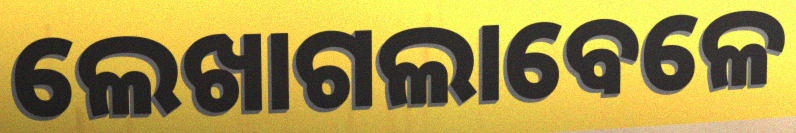
ଲେଖାଗଲାବେଳେ